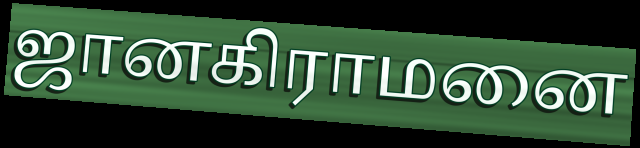
ஜானகிராமனை